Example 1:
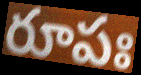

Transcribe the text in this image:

రూపః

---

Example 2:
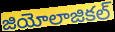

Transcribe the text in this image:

జియోలాజికల్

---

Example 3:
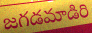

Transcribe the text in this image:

జగడమాడిరి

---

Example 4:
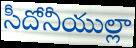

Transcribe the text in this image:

సీదోనీయుల్లా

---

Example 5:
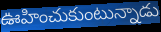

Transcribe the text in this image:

ఊహించుకుంటున్నాడు